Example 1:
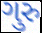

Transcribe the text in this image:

ગુરુ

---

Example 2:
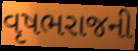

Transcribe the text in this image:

વૃષભરાજની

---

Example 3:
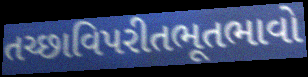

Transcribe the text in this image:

તચ્છાવિપરીતભૂતભાવો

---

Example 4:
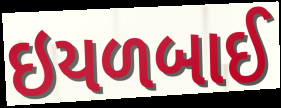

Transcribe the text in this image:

ઇયળબાઈ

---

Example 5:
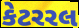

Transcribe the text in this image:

કેટરરલ